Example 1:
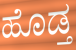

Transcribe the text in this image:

ಹೊಡ್ತ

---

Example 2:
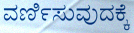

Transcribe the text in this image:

ವರ್ಣಿಸುವುದಕ್ಕೆ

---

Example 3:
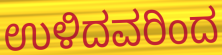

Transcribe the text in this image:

ಉಳಿದವರಿಂದ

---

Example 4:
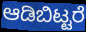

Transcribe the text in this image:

ಆಡಿಬಿಟ್ಟರೆ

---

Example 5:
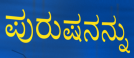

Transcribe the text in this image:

ಪುರುಷನನ್ನು